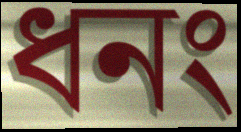
ধনং